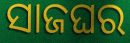
ସାଜଘର